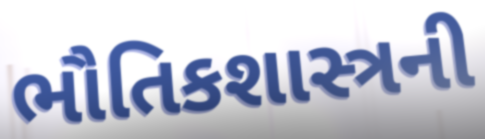
ભૌતિકશાસ્ત્રની